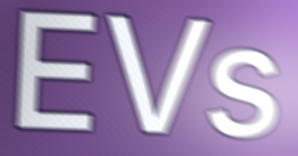
EVs